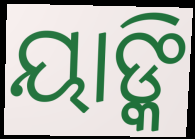
ୟାଙ୍କି